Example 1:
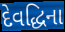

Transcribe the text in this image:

દેવદ્ધિના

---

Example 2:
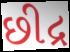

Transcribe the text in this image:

છીદ્ર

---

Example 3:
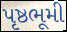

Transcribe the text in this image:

પૃષ્ઠભૂમી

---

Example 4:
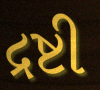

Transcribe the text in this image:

દ્રષ્ટી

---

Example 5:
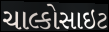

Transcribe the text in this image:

ચાલ્કોસાઇટ